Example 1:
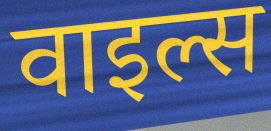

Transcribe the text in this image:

वाइल्स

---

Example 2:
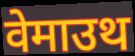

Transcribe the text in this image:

वेमाउथ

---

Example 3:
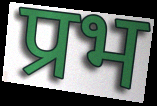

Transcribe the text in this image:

प्रभ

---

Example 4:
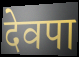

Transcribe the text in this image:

देवपा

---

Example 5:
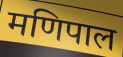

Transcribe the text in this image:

मणिपाल